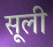
सूली